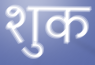
शुक